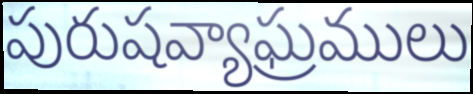
పురుషవ్యాఘ్రములు